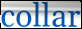
collar